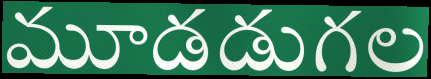
మూడడుగల